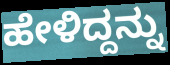
ಹೇಳಿದ್ದನ್ನು